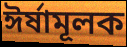
ঈর্ষামূলক